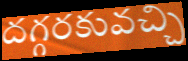
దగ్గరకువచ్చి